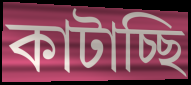
কাটাচ্ছি